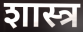
शास्त्र